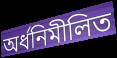
অর্ধনিমীলিত